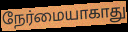
நேர்மையாகாது